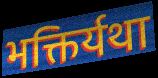
भक्तिर्यथा